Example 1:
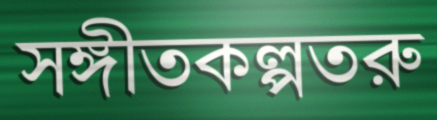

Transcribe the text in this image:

সঙ্গীতকল্পতরু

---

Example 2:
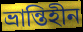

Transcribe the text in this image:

ভ্রান্তিহীন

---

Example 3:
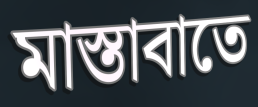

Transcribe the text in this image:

মাস্তাবাতে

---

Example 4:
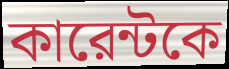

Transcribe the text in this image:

কারেন্টকে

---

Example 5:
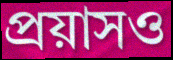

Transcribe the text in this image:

প্রয়াসও